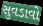
સુવડાવો